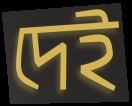
দেই